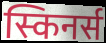
स्किनर्स